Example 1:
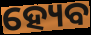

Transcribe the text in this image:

ହ୍ୟେବ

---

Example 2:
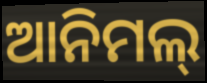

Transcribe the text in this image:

ଆନିମଲ୍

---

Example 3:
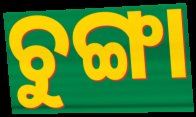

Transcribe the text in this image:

ଚୁଙ୍ଗା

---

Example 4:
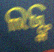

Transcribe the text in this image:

ଲଜ୍ଙ୍କ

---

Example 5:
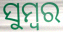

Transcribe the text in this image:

ସୁମ୍ବର